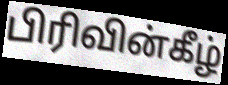
பிரிவின்கீழ்